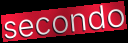
secondo